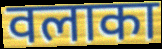
वलाका